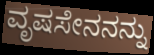
ವೃಷಸೇನನನ್ನು